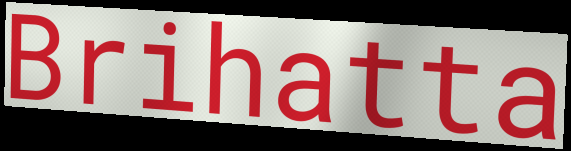
Brihatta